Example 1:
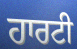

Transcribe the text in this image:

ਹਾਰਟੀ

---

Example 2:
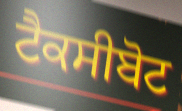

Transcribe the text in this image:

ਟੈਕਸੀਬੋਟ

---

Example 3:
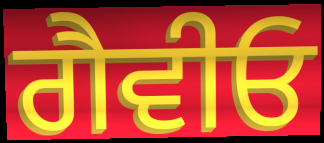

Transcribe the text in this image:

ਗੈਵੀਓ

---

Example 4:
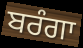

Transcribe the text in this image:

ਬਰੰਗਾ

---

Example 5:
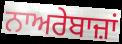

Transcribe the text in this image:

ਨਾਅਰੇਬਾਜ਼ਾਂ